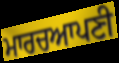
ਮਾਰਚਆਪਣੀ